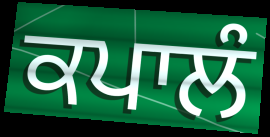
ਕਪਾਲੰ